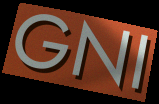
GNI